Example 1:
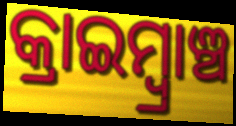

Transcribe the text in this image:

କ୍ରାଇମ୍ବ୍ରାଞ୍ଚ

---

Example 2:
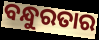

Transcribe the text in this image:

ବନ୍ଧୁରତାର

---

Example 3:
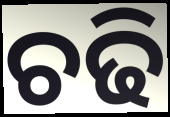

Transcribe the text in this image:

ଚଢି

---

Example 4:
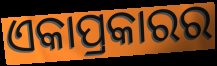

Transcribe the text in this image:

ଏକାପ୍ରକାରର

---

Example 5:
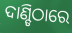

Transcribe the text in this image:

ଦାଣ୍ଡିଠାରେ